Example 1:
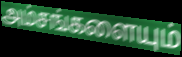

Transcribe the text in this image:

அம்சங்களையும்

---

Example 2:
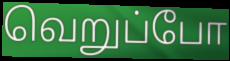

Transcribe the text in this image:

வெறுப்போ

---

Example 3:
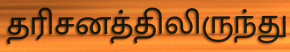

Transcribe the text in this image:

தரிசனத்திலிருந்து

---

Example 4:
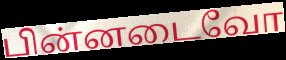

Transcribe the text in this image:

பின்னடைவோ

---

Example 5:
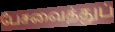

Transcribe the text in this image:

பேசவைத்துப்